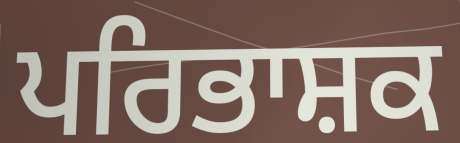
ਪਰਿਭਾਸ਼ਕ